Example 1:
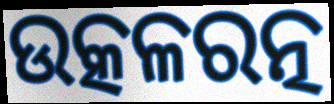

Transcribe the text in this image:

ଉତ୍କଳରତ୍ନ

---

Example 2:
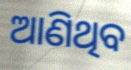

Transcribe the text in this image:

ଆଣିଥିବ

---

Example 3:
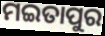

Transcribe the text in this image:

ମଇତାପୁର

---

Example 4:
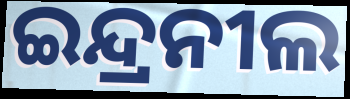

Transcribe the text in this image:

ଇନ୍ଦ୍ରନୀଲ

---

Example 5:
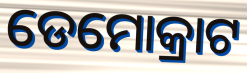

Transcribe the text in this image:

ଡେମୋକ୍ରାଟ